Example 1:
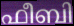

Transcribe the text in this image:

ഫീബി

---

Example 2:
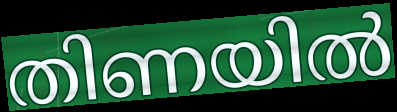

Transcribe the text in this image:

തിണയിൽ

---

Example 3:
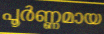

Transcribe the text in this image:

പൂർണ്ണമായ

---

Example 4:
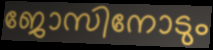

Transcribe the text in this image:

ജോസിനോടും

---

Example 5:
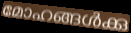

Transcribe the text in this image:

മോഹങ്ങൾക്കു